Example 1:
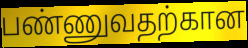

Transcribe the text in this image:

பண்ணுவதற்கான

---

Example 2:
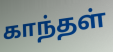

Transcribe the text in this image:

காந்தள்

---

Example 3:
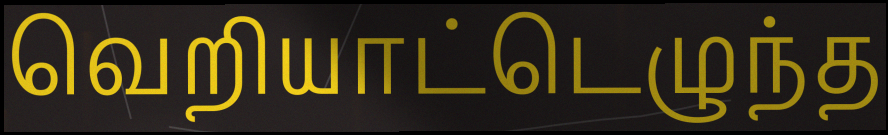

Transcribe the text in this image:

வெறியாட்டெழுந்த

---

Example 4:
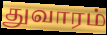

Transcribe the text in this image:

துவாரம்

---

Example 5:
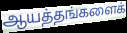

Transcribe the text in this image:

ஆயத்தங்களைக்